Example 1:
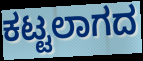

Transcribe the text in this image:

ಕಟ್ಟಲಾಗದ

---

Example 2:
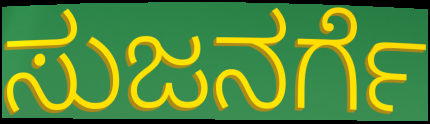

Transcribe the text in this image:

ಸುಜನರ್ಗೆ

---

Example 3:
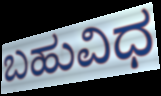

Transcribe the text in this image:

ಬಹುವಿಧ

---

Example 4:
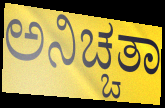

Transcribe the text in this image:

ಅನಿಚ್ಚತಾ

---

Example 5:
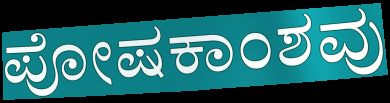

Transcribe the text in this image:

ಪೋಷಕಾಂಶವು